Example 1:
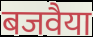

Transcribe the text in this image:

बजवैया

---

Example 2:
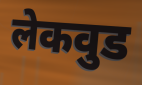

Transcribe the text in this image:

लेकवुड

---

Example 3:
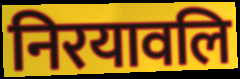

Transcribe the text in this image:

निरयावलि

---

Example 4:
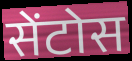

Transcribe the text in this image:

सेंटोस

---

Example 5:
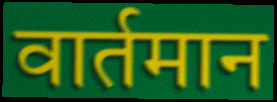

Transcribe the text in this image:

वार्तमान